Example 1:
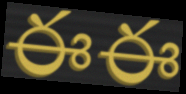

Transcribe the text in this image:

ఈఈ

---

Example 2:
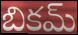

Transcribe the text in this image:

బికమ్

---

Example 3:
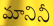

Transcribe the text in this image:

మానినీ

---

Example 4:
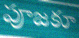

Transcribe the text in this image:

పూజకూ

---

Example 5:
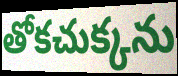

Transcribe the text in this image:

తోకచుక్కను